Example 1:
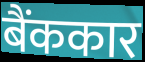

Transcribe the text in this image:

बैंककार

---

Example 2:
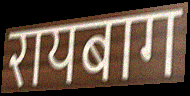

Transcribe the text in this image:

रायबाग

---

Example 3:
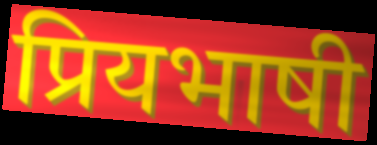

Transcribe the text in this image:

प्रियभाषी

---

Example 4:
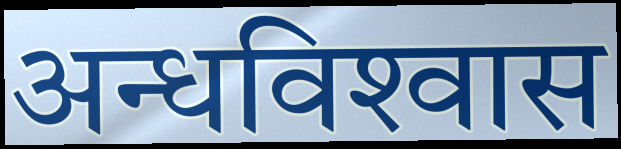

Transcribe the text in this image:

अन्‍धविश्‍वास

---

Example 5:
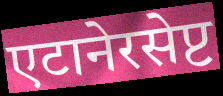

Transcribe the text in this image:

एटानेरसेप्ट